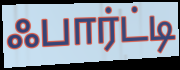
ஃபார்ட்டி